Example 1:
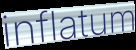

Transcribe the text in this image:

inflatum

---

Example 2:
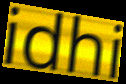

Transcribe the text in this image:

idhi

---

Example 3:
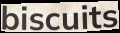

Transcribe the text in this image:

biscuits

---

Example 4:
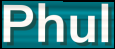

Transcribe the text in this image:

Phul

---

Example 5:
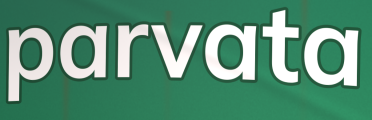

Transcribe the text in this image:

parvata